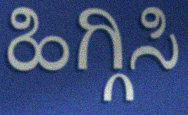
ಹಿಗ್ಗಿಸಿ